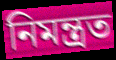
নিমন্ত্রত